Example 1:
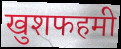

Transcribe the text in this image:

खुशफहमी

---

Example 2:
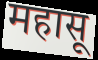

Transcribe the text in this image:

महासू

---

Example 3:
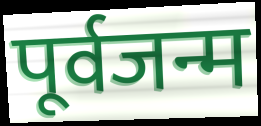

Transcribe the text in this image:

पूर्वजन्‍म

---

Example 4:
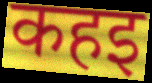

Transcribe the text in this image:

कहइ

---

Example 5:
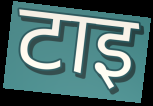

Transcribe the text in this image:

टाइ